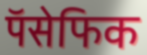
पॅसेफिक